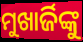
ମୁଖାର୍ଜିଙ୍କୁ